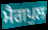
ਮੈਗਪੁਲ